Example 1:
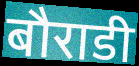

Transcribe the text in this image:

बौराडी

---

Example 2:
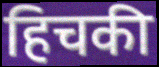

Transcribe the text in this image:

हिचकी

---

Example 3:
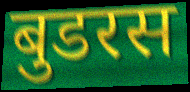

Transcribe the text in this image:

बुडरस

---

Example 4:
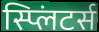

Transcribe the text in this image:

स्प्लिंटर्स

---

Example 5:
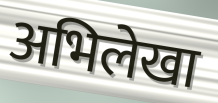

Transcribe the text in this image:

अभिलेखा